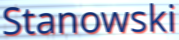
Stanowski